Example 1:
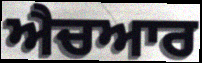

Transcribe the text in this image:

ਐਚਆਰ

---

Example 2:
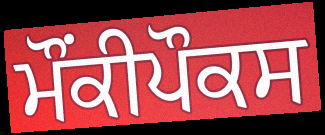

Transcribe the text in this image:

ਮੌਂਕੀਪੌਕਸ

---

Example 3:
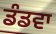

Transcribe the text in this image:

ਡੰਡਵਾ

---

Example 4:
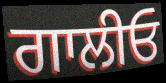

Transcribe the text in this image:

ਗਾਲੀਓ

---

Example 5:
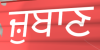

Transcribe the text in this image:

ਜ਼ੁਬਾਣ